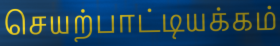
செயற்பாட்டியக்கம்